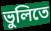
ভুলিতে